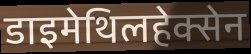
डाइमेथिलहेक्सेन